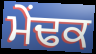
ਮੇਂਢਕ